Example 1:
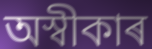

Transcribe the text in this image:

অস্বীকাৰ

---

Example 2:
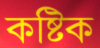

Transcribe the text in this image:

কষ্টিক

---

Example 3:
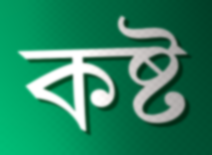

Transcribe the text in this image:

কষ্ট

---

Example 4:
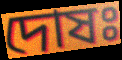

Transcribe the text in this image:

দোষঃ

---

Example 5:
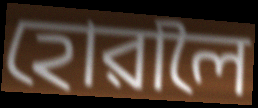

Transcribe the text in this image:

হোৱালৈ